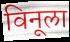
विनूला